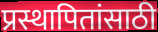
प्रस्थापितांसाठी